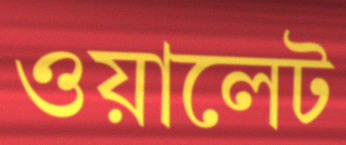
ওয়ালেট